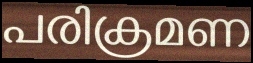
പരിക്രമണ